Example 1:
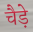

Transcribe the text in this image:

चैड़े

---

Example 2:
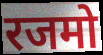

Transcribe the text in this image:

रजमो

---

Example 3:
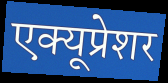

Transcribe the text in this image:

एक्यूप्रेशर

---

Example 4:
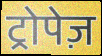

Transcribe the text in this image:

ट्रोपेज़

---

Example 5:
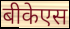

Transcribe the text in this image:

बीकेएस